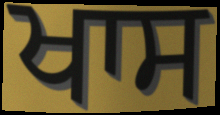
ਖਾਸ